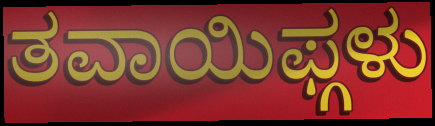
ತವಾಯಿಫ್ಗಳು